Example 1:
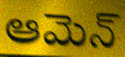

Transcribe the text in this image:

ఆమెన్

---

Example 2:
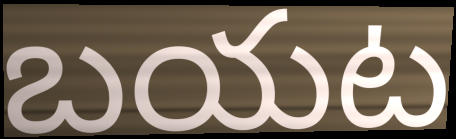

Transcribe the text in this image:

బయట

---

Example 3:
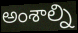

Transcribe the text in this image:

అంశాల్ని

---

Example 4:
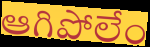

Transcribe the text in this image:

ఆగిపోలేం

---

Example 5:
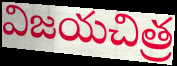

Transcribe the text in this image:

విజయచిత్ర